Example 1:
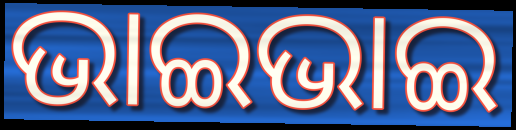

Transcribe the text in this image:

ଭାଇଭାଇ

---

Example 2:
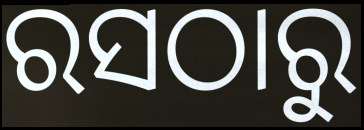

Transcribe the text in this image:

ରସଠାରୁ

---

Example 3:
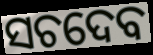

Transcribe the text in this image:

ସଚଦେବ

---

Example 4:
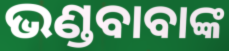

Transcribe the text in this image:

ଭଣ୍ଡବାବାଙ୍କ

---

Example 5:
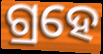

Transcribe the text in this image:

ଗ୍ରହେ